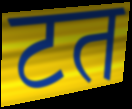
टत